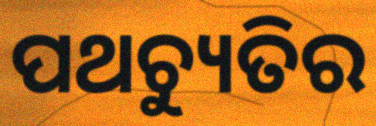
ପଥଚ୍ୟୁତିର